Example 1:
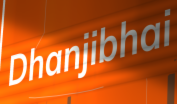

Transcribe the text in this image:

Dhanjibhai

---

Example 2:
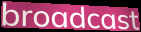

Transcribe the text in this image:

broadcast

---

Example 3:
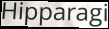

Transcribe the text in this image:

Hipparagi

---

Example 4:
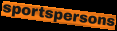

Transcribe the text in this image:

sportspersons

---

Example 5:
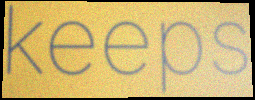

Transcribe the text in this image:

keeps